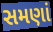
સમણાં